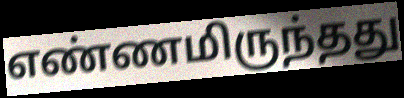
எண்ணமிருந்தது